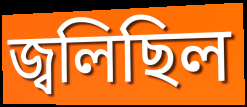
জ্বলিছিল